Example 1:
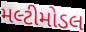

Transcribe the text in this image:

મલ્ટીમોડલ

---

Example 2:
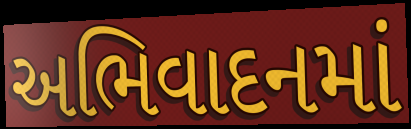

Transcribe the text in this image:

અભિવાદનમાં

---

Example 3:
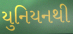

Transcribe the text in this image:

યુનિયનથી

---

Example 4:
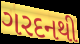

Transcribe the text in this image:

ગરદનથી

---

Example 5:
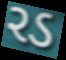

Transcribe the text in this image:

રડ